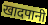
खादपानी